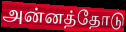
அன்னத்தோடு